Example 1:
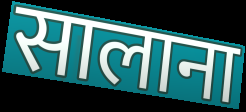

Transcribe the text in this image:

सालाना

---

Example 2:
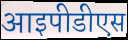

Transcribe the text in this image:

आइपीडीएस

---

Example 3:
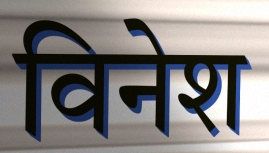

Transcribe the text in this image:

विनेश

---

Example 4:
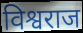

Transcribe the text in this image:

विश्वराज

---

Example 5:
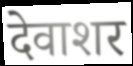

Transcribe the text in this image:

देवाशर